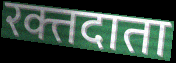
रक्तदाता